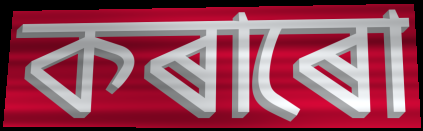
কৰাৰো